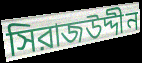
সিরাজউদ্দীন